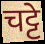
चट्टे